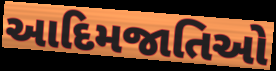
આદિમજાતિઓ